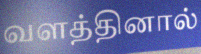
வளத்தினால்